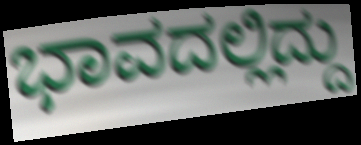
ಭಾವದಲ್ಲಿದ್ದು